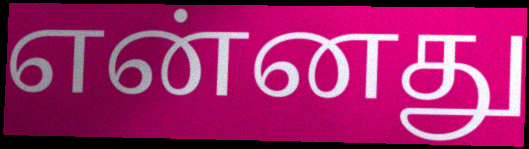
என்னது